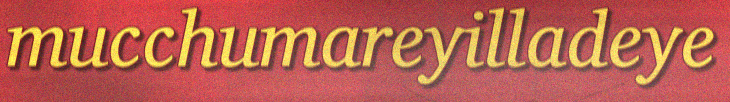
mucchumareyilladeye